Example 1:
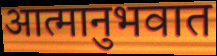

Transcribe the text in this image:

आत्मानुभवात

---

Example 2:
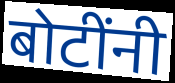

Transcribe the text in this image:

बोटींनी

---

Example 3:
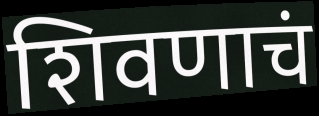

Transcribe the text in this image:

शिवणाचं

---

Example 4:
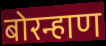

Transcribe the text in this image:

बोरन्हाण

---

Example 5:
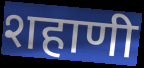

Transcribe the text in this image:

शहाणी